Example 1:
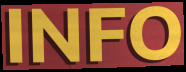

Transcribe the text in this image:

INFO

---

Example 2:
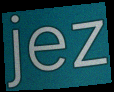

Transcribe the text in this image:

jez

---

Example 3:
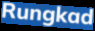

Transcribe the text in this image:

Rungkad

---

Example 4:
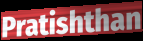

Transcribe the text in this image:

Pratishthan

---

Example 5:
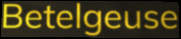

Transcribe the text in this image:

Betelgeuse